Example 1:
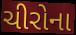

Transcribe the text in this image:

ચીરોના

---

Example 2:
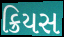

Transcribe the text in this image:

ક્રિયસ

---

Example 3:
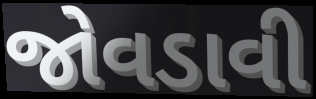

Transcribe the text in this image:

જોવડાવી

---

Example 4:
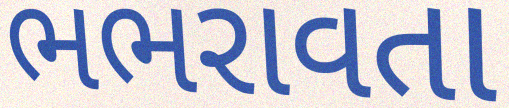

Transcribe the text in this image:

ભભરાવતા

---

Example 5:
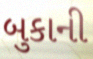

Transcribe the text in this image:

બુકાની